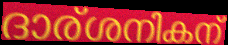
ദാര്ശനികന്